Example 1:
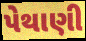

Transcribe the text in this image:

પેથાણી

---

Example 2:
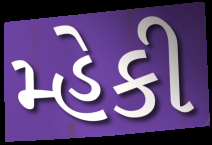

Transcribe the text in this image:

મ્હેકી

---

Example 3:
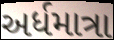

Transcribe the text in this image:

અર્ધમાત્રા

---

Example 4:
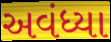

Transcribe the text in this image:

અવંધ્યા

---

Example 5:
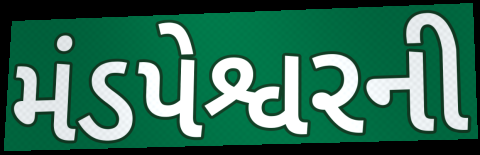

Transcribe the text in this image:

મંડપેશ્વરની